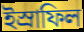
ইস্রাফিল